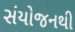
સંયોજનથી